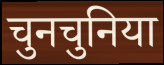
चुनचुनिया